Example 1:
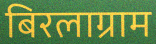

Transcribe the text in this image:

बिरलाग्राम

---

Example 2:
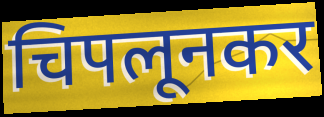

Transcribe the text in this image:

चिपलूनकर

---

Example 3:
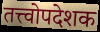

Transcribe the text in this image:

तत्त्वोपदेशक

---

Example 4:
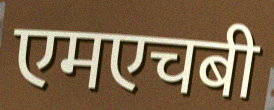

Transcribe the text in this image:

एमएचबी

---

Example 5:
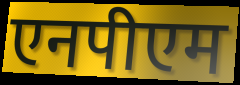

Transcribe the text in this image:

एनपीएम